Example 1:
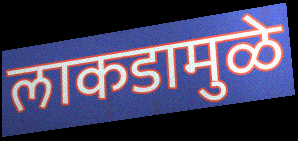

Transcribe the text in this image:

लाकडामुळे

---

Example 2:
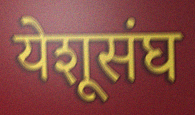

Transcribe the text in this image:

येशूसंघ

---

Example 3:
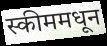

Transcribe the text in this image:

स्कीममधून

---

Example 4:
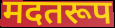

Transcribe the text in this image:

मदतरूप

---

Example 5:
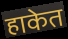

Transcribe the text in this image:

हाकेत